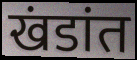
खंडांत